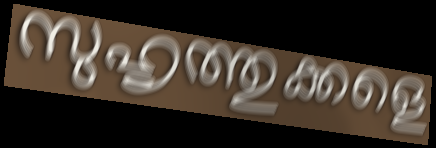
സുഹൃത്തുക്കളെ